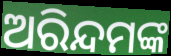
ଅରିନ୍ଦମଙ୍କ